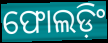
ଫୋଲଡ଼ିଂ